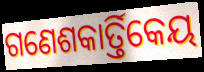
ଗଣେଶକାର୍ତ୍ତିକେୟ